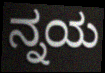
ನ್ನಯ